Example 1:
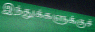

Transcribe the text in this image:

இந்துக்களுக்குச்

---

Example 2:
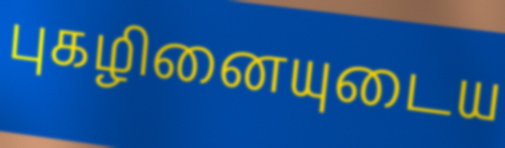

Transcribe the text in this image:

புகழினையுடைய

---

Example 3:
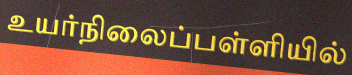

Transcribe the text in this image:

உயர்நிலைப்பள்ளியில்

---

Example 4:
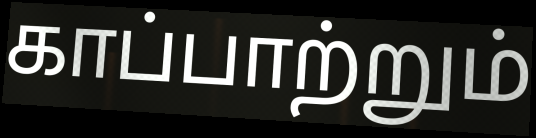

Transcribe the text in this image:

காப்பாற்றும்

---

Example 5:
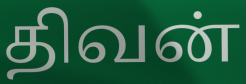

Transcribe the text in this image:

திவன்